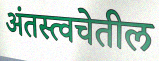
अंतस्त्वचेतील